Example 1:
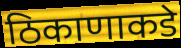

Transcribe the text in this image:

ठिकाणाकडे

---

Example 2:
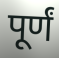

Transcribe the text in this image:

पूर्णं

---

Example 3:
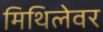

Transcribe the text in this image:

मिथिलेवर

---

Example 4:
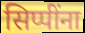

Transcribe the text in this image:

सिप्पींना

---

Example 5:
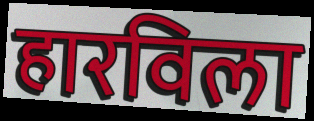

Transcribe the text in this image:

हारविला